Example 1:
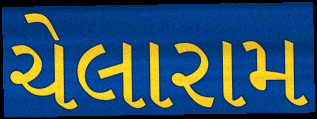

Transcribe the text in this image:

ચેલારામ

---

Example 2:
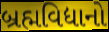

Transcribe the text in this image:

બ્રહ્મવિદ્યાનો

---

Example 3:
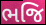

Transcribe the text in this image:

ભજિ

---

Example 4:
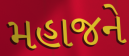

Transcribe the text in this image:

મહાજને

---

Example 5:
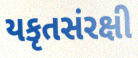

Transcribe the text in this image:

યકૃતસંરક્ષી